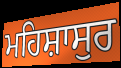
ਮਹਿਸ਼ਾਸੁਰ